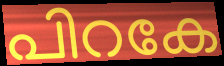
പിറകേ